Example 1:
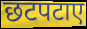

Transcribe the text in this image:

छटपटाए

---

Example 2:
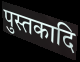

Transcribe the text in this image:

पुस्तकादि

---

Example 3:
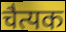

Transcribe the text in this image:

चैत्यक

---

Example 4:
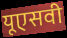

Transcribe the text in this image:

यूएसवी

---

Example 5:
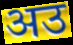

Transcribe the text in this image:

अउ